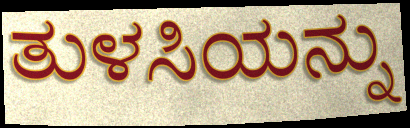
ತುಳಸಿಯನ್ನು